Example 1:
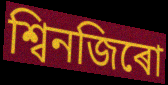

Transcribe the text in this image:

শ্বিনজিৰো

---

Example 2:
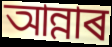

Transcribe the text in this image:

আন্নাৰ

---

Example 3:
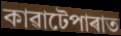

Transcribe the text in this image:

কাৱাটেপাৰাত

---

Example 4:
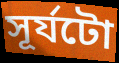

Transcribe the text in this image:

সূৰ্যটো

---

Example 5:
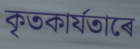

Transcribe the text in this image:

কৃতকাৰ্যতাৰে